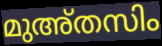
മുഅ്തസിം